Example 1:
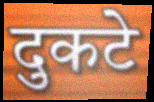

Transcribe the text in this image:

दुकटे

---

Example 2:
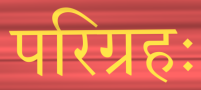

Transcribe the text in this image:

परिग्रहः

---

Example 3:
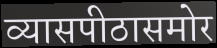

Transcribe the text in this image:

व्यासपीठासमोर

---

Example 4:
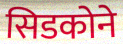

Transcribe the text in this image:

सिडकोने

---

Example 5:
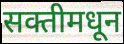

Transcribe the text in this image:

सक्तीमधून